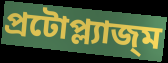
প্রটোপ্ল্যাজ্ম